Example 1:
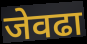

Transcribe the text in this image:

जेवढा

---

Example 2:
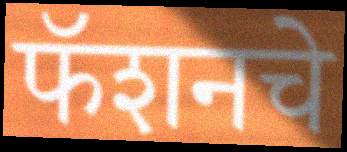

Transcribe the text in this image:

फॅशनचे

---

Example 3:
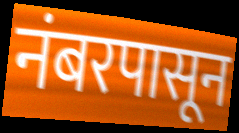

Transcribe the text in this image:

नंबरपासून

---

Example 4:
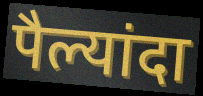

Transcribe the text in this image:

पैल्यांदा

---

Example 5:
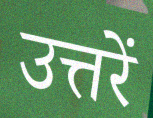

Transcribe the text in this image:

उत्तरें